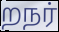
றநர்